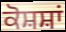
ਕੋਸ਼ਸ਼ਾਂ